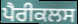
ਪੈਰੀਕਲਸ